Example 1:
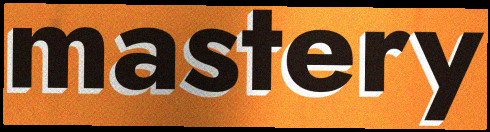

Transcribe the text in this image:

mastery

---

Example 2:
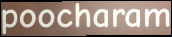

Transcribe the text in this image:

poocharam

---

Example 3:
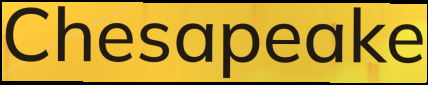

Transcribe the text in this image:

Chesapeake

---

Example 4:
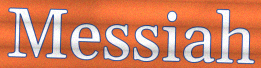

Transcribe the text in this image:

Messiah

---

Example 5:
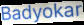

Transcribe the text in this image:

Badyokar